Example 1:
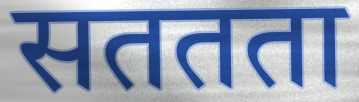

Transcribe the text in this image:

सततता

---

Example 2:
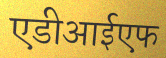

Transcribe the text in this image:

एडीआईएफ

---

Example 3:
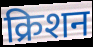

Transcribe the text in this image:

क्रिशन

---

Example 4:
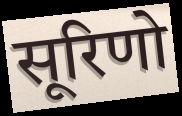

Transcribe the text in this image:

सूरिणो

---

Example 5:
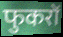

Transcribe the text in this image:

फुकरों